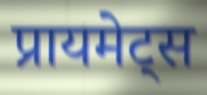
प्रायमेट्स